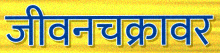
जीवनचक्रावर